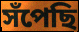
সঁপেছি